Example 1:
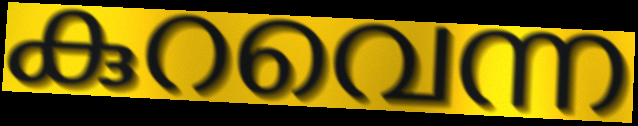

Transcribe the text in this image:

കുറവെന്ന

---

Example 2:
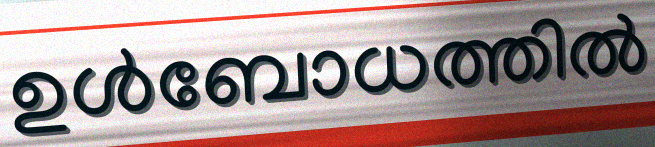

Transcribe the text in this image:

ഉൾബോധത്തിൽ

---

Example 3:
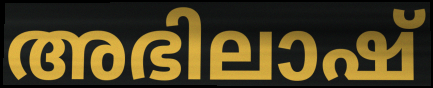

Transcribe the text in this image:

അഭിലാഷ്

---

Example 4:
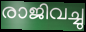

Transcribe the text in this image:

രാജിവച്ചു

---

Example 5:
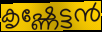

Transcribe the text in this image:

കൃഷ്ണേട്ടൻ